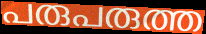
പരുപരുത്ത